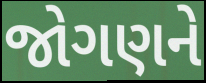
જોગણને